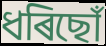
ধৰিছোঁ